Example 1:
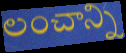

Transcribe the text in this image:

లంచాన్ని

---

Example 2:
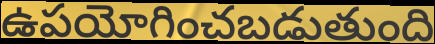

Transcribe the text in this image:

ఉపయోగించబడుతుంది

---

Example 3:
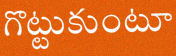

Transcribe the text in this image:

గొట్టుకుంటూ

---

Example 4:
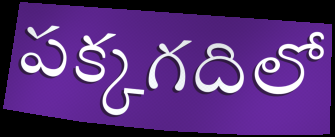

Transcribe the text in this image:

పక్కగదిలో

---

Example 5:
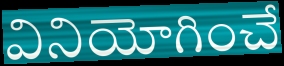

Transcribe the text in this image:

వినియోగించే